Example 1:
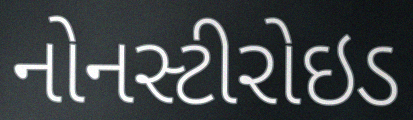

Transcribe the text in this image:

નોનસ્ટીરોઇડ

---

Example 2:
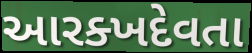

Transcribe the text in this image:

આરક્ખદેવતા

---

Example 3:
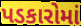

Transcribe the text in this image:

પડકારોમાં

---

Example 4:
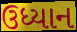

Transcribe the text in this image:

ઉધ્યાન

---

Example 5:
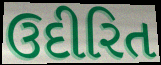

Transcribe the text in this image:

ઉદીરિત